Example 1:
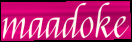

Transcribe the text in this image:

maadoke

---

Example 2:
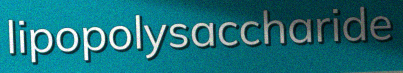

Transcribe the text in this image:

lipopolysaccharide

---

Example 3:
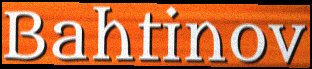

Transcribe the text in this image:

Bahtinov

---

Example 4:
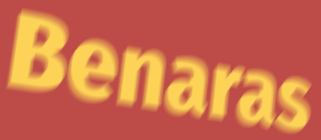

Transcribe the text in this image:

Benaras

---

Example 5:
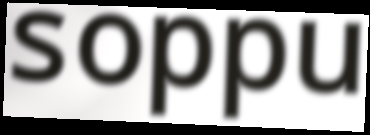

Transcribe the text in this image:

soppu